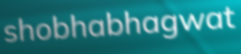
shobhabhagwat